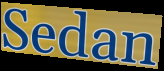
Sedan